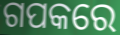
ଗପକରେ